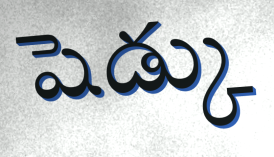
షెడ్కు